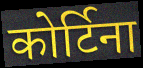
कोर्टिना